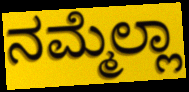
ನಮ್ಮೆಲ್ಲಾ